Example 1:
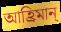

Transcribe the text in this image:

আহ্রিমান্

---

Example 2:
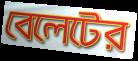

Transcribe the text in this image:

বেলেটের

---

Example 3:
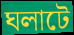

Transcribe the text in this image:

ঘলাটে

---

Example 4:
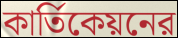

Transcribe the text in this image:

কার্তিকেয়নের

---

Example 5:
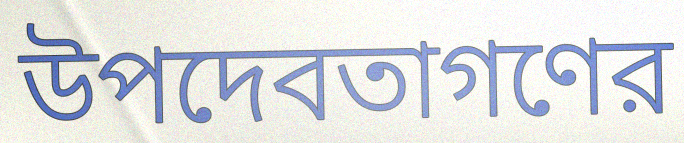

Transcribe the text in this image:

উপদেবতাগণের